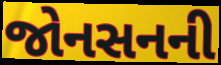
જોનસનની